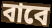
বাবে